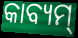
କାବ୍ୟମ୍